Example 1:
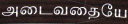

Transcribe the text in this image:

அடைவதையே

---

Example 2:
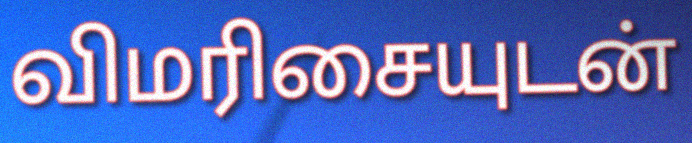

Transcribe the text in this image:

விமரிசையுடன்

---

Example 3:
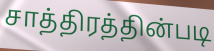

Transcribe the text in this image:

சாத்திரத்தின்படி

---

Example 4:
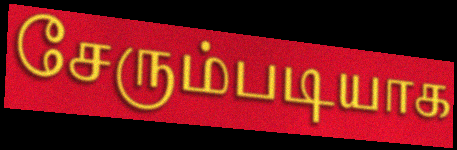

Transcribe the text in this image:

சேரும்படியாக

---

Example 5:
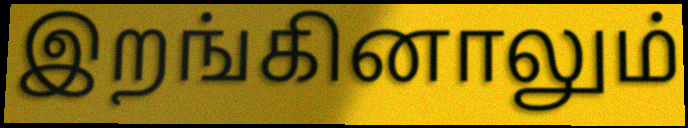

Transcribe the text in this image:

இறங்கினாலும்